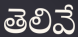
తెలివే